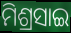
ମିଶ୍ରସାଇ